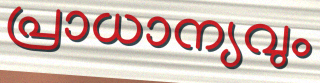
പ്രാധാന്യവും